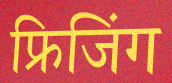
फ्रिजिंग